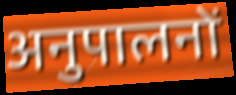
अनुपालनों